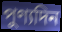
পুণ্যদিন